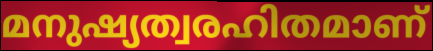
മനുഷ്യത്വരഹിതമാണ്